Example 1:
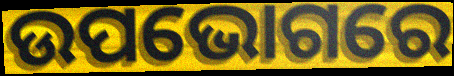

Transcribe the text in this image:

ଉପଭୋଗରେ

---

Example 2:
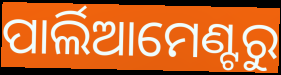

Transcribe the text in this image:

ପାର୍ଲିଆମେଣ୍ଟରୁ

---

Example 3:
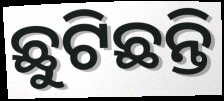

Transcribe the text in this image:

ଛୁଟିଛନ୍ତି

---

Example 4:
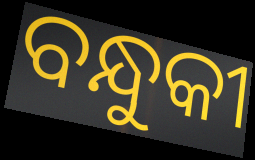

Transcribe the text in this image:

ବନ୍ଧୁକୀ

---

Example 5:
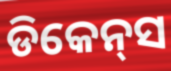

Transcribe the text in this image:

ଡିକେନ୍‌ସ